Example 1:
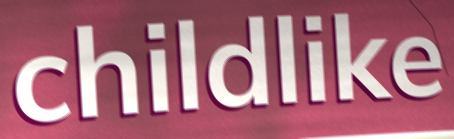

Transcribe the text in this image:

childlike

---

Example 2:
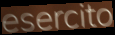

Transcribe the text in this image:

esercito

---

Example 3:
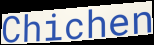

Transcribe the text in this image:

Chichen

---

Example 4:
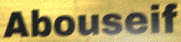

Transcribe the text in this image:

Abouseif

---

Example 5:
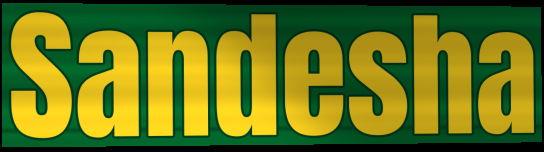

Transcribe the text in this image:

Sandesha